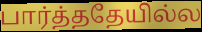
பார்த்ததேயில்ல